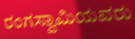
ರಂಗಸ್ವಾಮಿಯವರು